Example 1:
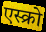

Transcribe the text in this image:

एस्क्रो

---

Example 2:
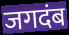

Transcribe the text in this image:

जगदंब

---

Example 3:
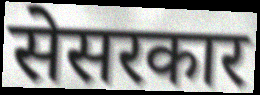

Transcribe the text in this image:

सेसरकार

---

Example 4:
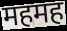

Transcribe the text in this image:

महमह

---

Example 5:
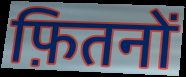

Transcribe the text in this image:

फ़ितनों